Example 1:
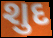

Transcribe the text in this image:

શુદ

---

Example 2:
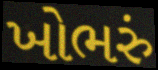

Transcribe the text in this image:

ખોભરું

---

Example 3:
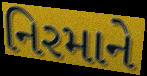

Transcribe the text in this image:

નિરમાને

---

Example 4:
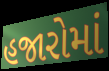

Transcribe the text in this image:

હજારોમાં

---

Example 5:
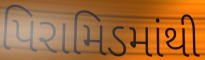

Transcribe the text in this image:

પિરામિડમાંથી